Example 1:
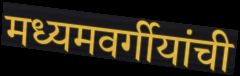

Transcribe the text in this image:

मध्यमवर्गीयांची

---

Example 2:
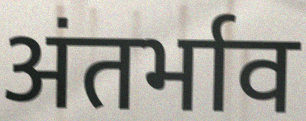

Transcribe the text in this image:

अंतर्भाव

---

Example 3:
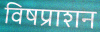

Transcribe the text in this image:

विषप्राशन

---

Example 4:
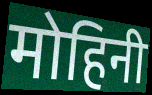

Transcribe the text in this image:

मोहिनी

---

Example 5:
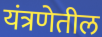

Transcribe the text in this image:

यंत्रणेतील